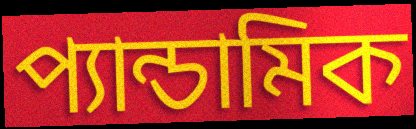
প্যান্ডামিক